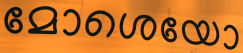
മോശെയോ